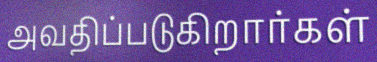
அவதிப்படுகிறார்கள்